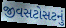
જીવસટોસટનું